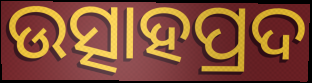
ଉତ୍ସାହପ୍ରଦ